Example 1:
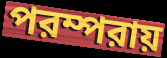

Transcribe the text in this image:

পরম্পরায়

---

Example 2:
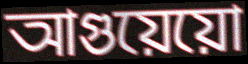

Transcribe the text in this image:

আগুয়েয়ো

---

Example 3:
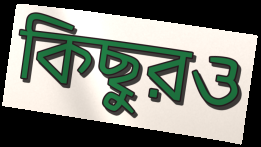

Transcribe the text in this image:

কিছুরও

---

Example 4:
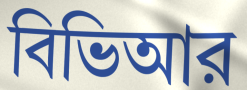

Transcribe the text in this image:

বিভিআর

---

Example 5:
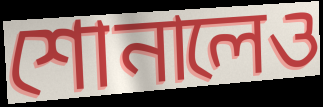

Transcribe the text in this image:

শোনালেও